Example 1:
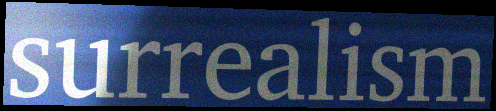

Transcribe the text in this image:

surrealism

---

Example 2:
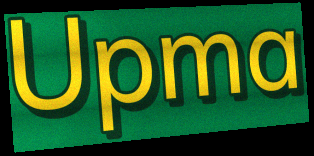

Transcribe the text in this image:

Upma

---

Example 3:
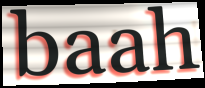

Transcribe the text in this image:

baah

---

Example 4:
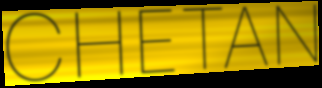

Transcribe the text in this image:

CHETAN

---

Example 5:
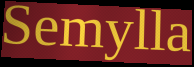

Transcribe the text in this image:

Semylla